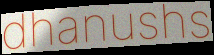
dhanushs